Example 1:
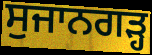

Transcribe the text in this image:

ਸੁਜਾਨਗੜ੍ਹ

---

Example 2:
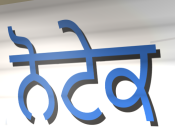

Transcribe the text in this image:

ਨੋਟੇਕ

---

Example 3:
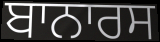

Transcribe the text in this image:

ਬਾਨਾਰਸ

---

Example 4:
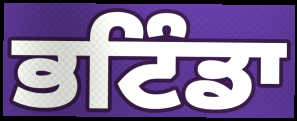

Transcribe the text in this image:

ਭਟਿੰਡਾ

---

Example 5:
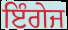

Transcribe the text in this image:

ਇੰਗੇਜ